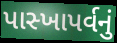
પાસ્ખાપર્વનું